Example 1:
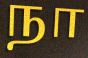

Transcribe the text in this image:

நா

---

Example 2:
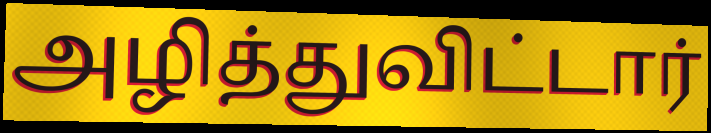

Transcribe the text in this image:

அழித்துவிட்டார்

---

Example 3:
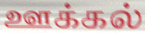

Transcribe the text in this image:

ஊக்கல்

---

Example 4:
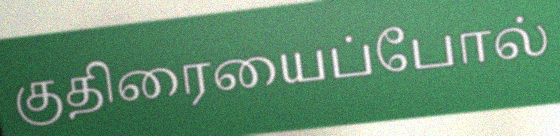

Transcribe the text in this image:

குதிரையைப்போல்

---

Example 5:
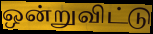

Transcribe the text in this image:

ஒன்றுவிட்டு